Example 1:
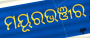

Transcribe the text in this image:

ମୟୂରଭଞ୍ଜର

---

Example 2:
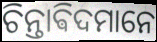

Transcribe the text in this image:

ଚିନ୍ତାଵିଦମାନେ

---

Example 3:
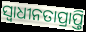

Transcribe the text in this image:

ସ୍ୱାଧୀନତାପ୍ରାପ୍ତି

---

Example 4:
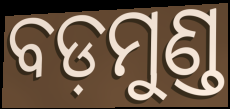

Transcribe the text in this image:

ବଡ଼ମୁଣ୍ଡ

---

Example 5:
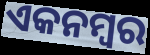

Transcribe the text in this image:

ଏକନମ୍ବର